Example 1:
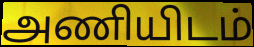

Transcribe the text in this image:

அணியிடம்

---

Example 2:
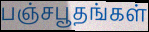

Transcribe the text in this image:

பஞ்சபூதங்கள்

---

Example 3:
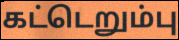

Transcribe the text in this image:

கட்டெறும்பு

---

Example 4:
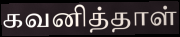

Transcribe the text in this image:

கவனித்தாள்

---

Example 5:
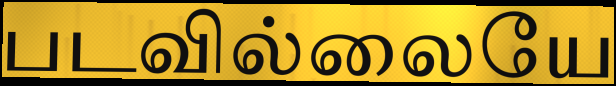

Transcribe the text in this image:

படவில்லையே